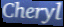
Cheryl